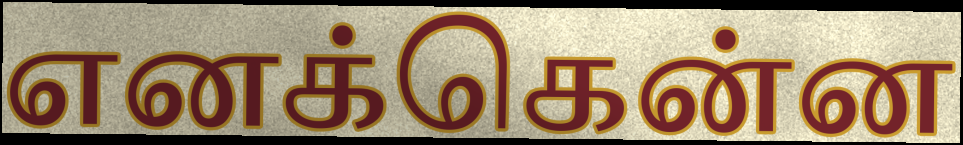
எனக்கென்ன